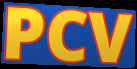
PCV